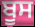
ਬੂਸ